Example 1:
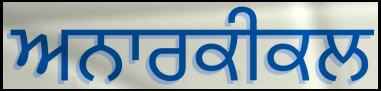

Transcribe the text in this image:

ਅਨਾਰਕੀਕਲ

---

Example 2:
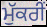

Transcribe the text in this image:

ਮੁੱਕਰੀਂ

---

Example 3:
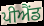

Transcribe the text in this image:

ਪੀਐਂਡ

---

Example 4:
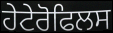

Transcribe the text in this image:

ਹੇਟੇਰੋਫਿਲਸ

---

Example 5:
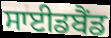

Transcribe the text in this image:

ਸਾਈਡਬੈਂਡ